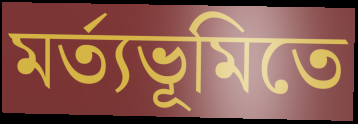
মর্ত্যভূমিতে